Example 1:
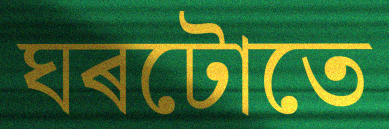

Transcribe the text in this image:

ঘৰটোতে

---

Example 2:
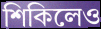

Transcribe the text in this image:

শিকিলেও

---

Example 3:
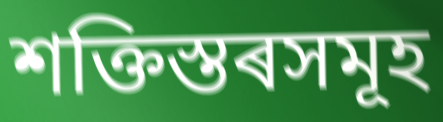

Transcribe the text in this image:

শক্তিস্তৰসমূহ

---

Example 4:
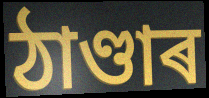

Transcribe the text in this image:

ঠাণ্ডাৰ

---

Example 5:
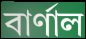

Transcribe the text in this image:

বাৰ্ণাল